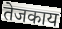
तेजकाय